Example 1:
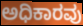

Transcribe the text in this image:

ಅಧಿಕಾರವು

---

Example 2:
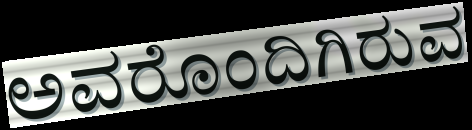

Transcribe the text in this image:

ಅವರೊಂದಿಗಿರುವ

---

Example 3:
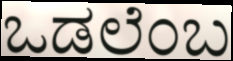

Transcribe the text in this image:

ಒಡಲೆಂಬ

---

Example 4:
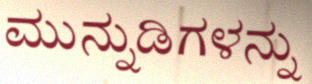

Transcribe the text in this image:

ಮುನ್ನುಡಿಗಳನ್ನು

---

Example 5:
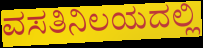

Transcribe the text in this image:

ವಸತಿನಿಲಯದಲ್ಲಿ